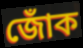
জোঁক